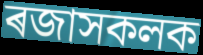
ৰজাসকলক